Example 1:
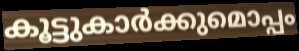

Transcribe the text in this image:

കൂട്ടുകാർക്കുമൊപ്പം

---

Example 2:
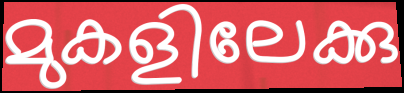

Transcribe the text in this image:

മുകളിലേക്കു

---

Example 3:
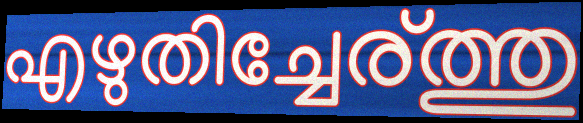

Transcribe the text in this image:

എഴുതിച്ചേര്ത്തു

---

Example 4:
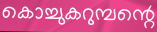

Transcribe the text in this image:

കൊച്ചുകറുമ്പന്റെ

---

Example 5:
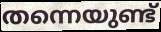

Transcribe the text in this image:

തന്നെയുണ്ട്